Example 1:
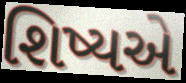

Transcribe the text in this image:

શિષ્યએ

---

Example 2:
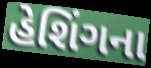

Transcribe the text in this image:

હેશિંગના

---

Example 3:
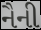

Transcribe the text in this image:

નૈની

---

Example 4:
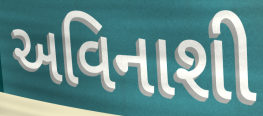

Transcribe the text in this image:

અવિનાશી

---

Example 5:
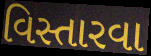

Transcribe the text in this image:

વિસ્તારવા